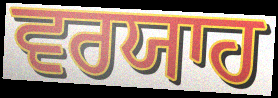
ਵਰਯਾਹ